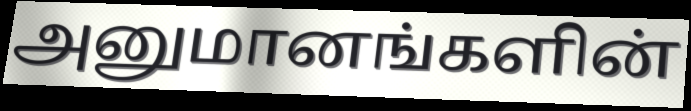
அனுமானங்களின்